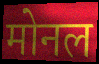
मोनल